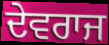
ਦੇਵਰਾਜ